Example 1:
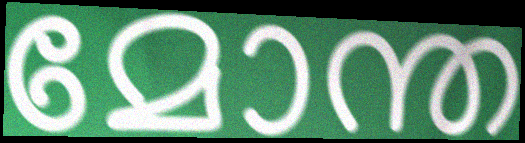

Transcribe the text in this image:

മോന്ത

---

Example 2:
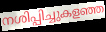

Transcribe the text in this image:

നശിപ്പിച്ചുകളഞ്ഞ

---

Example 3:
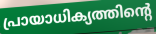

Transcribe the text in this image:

പ്രായാധിക്യത്തിന്റെ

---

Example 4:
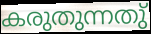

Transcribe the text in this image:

കരുതുന്നതു്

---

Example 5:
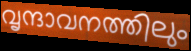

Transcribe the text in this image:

വൃന്ദാവനത്തിലും